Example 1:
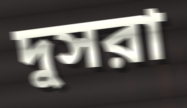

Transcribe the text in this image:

দুসরা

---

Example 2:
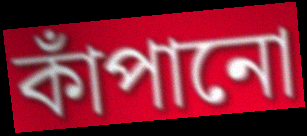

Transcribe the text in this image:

কাঁপানো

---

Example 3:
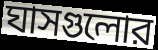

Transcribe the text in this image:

ঘাসগুলোর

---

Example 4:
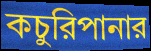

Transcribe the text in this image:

কচুরিপানার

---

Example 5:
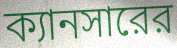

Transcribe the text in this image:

ক্যানসারের